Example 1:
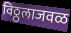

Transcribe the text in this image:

विठ्ठलाजवळ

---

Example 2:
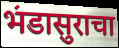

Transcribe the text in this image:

भंडासुराचा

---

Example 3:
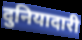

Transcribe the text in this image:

दुनियादारी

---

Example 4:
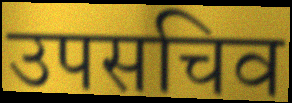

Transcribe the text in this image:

उपसचिव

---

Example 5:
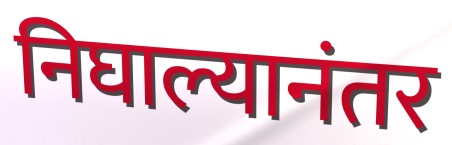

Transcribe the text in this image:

निघाल्यानंतर